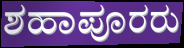
ಶಹಾಪೂರರು